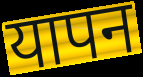
यापन